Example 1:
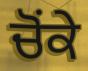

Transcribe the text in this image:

ਚੋਂਕੇ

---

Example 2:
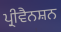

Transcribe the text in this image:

ਪ੍ਰੀਵੈਨਸ਼ਨ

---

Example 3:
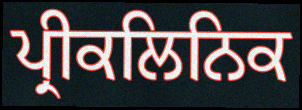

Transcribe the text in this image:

ਪ੍ਰੀਕਲਿਨਿਕ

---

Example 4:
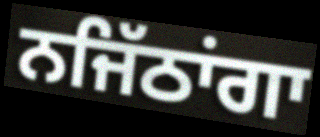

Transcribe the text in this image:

ਨਜਿੱਠਾਂਗਾ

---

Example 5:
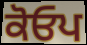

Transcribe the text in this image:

ਕੋਓਪ